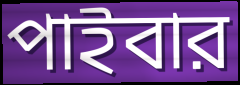
পাইবার